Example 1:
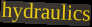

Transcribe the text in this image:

hydraulics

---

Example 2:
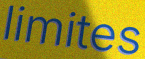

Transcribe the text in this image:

limites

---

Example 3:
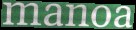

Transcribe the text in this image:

manoa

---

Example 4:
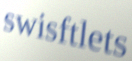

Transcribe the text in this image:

swisftlets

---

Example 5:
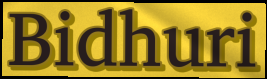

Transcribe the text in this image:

Bidhuri